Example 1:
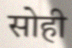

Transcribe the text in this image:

सोही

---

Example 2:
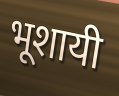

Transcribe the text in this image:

भूशायी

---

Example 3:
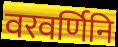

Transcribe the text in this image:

वरवर्णिनि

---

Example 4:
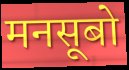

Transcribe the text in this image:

मनसूबो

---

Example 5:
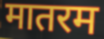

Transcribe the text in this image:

मातरम